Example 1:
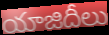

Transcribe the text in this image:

యాజిదీలు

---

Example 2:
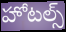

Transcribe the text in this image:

హోటల్స్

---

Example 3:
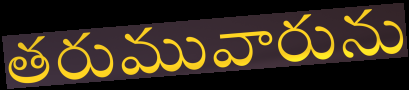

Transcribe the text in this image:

తరుమువారును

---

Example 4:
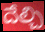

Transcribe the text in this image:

దేల్చి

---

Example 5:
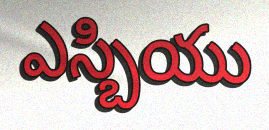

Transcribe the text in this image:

ఎస్బియు